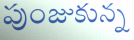
పుంజుకున్న